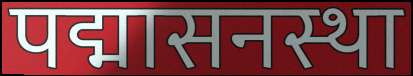
पद्मासनस्था